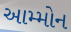
આમ્મોન